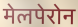
मेलपेरोन